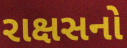
રાક્ષસનો